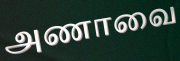
அணாவை